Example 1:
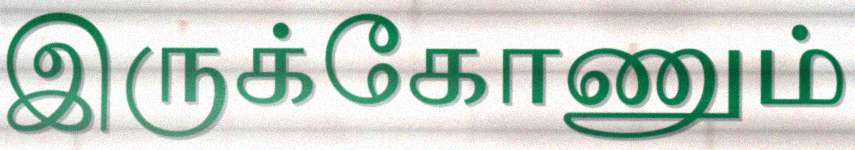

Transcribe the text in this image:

இருக்கோணும்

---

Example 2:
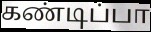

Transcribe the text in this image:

கண்டிப்பா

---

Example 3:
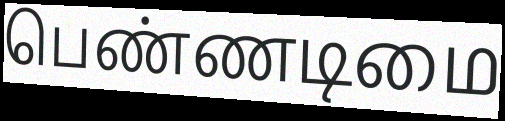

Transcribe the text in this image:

பெண்ணடிமை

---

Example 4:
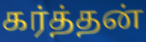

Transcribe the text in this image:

கர்த்தன்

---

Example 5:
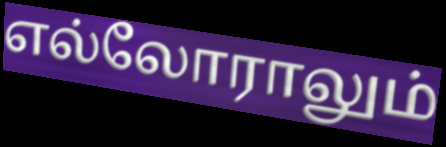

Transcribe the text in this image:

எல்லோராலும்